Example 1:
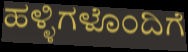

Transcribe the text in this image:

ಹಳ್ಳಿಗಳೊಂದಿಗೆ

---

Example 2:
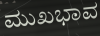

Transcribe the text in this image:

ಮುಖಭಾವ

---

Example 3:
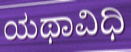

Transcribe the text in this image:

ಯಥಾವಿಧಿ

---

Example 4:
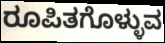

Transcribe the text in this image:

ರೂಪಿತಗೊಳ್ಳುವ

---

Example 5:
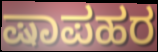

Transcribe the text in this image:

ಷಾಪಹರ